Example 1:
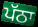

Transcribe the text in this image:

ਪੱਠਾ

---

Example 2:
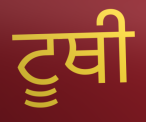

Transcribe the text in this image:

ਟੂਥੀ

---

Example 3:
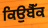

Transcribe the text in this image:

ਕਿਉਬੈੱਕ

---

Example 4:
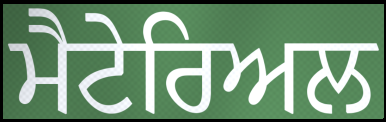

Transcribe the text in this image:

ਮੈਟੇਰਿਅਲ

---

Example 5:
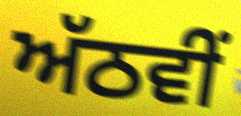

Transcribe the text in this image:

ਅੱਠਵੀੰ